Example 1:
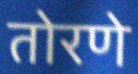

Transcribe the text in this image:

तोरणे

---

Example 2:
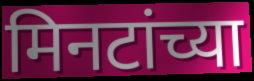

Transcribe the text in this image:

मिनटांच्या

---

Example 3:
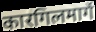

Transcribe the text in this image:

कारगिलमार्गे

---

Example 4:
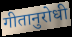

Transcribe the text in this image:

गीतानुरोधी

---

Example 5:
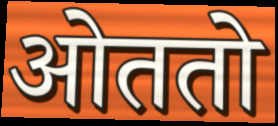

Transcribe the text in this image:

ओततो